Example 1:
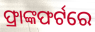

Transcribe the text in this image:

ଫ୍ରାଙ୍କଫର୍ଟରେ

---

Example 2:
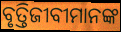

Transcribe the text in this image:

ବୃତ୍ତିଜୀବୀମାନଙ୍କ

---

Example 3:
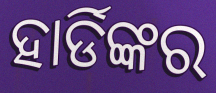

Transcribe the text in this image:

ହାର୍ଡିଙ୍କର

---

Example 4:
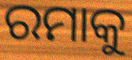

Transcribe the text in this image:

ରମାକୁ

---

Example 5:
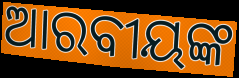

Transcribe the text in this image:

ଆରବୀୟଙ୍କ